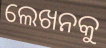
ଲେଖନକୁ